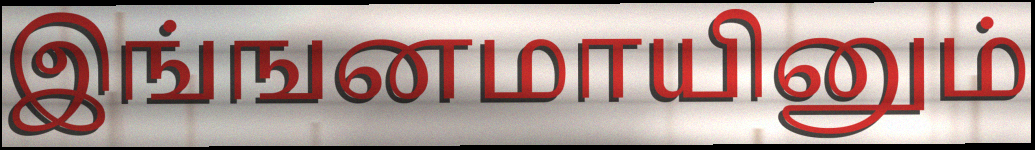
இங்ஙனமாயினும்